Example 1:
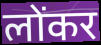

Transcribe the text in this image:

लोंकर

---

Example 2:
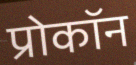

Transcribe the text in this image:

प्रोकॉन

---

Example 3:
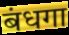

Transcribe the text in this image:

बंधगा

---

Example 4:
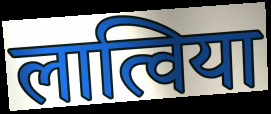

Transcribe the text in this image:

लात्विया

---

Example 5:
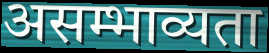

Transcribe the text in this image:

असम्भाव्यता